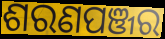
ଶରଣପଞ୍ଜର